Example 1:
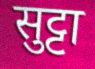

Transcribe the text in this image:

सुट्टा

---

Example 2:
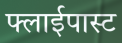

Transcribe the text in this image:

फ्लाईपास्ट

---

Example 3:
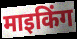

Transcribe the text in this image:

माइकिंग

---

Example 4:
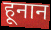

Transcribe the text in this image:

हूनान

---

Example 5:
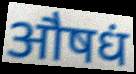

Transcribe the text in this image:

औषधं